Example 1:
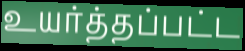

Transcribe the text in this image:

உயர்த்தப்பட்ட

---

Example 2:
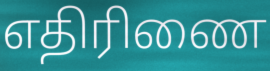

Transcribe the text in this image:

எதிரிணை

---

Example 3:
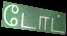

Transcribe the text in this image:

டோட்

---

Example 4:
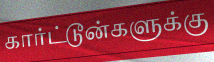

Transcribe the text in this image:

கார்ட்டூன்களுக்கு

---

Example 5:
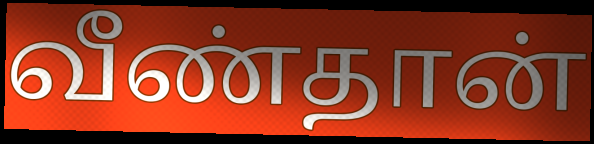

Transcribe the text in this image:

வீண்தான்